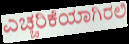
ಎಚ್ಚರಿಕೆಯಾಗಿರಲಿ